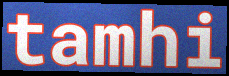
tamhi